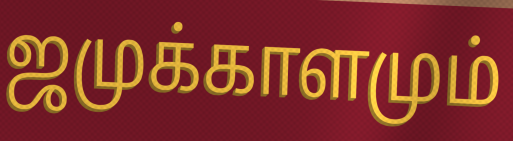
ஜமுக்காளமும்